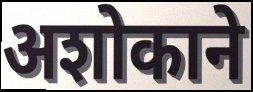
अशोकाने